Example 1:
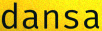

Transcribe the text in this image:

dansa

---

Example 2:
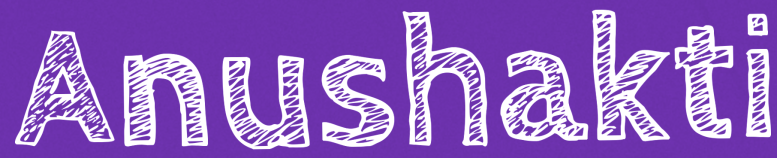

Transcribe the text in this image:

Anushakti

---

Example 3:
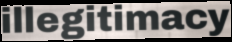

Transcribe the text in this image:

illegitimacy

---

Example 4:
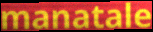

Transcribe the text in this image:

manatale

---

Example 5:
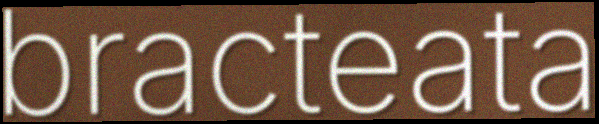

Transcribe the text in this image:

bracteata